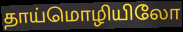
தாய்மொழியிலோ